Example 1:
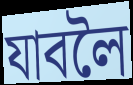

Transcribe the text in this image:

যাবলৈ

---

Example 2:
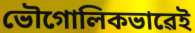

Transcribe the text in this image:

ভৌগোলিকভাৱেই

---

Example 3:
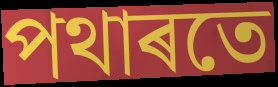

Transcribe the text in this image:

পথাৰতে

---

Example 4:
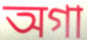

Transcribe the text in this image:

অগা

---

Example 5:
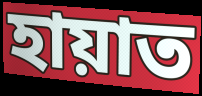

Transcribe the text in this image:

হায়াত